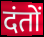
दंतों